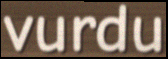
vurdu